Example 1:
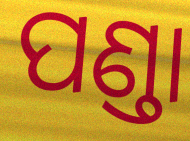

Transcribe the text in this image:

ପଣ୍ଡା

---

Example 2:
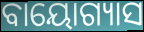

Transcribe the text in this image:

ବାୟୋଗ୍ୟାସ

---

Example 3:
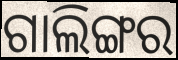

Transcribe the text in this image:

ଗାଲିଙ୍ଗର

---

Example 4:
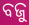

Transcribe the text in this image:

ବଜୁ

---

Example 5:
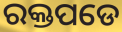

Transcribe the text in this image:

ରକ୍ତପଡେ